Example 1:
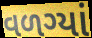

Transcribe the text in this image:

વળગ્યાં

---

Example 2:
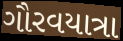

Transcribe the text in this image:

ગૌરવયાત્રા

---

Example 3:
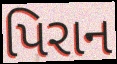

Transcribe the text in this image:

પિરાન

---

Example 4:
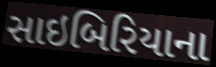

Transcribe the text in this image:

સાઇબિરિયાના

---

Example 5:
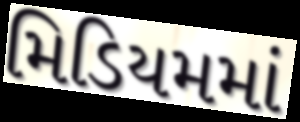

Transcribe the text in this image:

મિડિયમમાં